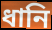
ধানি